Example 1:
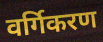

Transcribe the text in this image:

वर्गिकरण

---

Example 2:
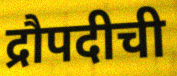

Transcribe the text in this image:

द्रौपदीची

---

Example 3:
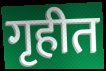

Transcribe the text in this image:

गृहीत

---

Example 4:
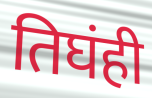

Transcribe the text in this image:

तिघंही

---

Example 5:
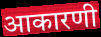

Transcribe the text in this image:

आकारणी